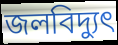
জলবিদ্যুৎ